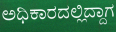
ಅಧಿಕಾರದಲ್ಲಿದ್ದಾಗ